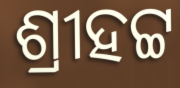
ଶ୍ରୀହଟ୍ଟ